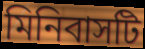
মিনিবাসটি